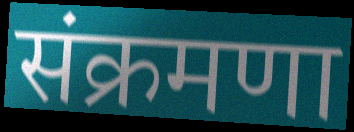
संक्रमणा